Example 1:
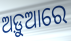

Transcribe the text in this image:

ଅଡ଼ୁଆରେ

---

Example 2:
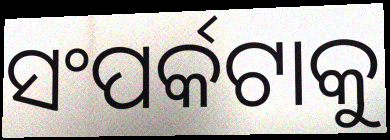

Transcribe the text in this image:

ସଂପର୍କଟାକୁ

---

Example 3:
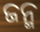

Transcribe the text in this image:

ଜନ୍ମ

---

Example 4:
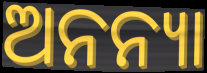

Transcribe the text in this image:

ଅନନ୍ୟା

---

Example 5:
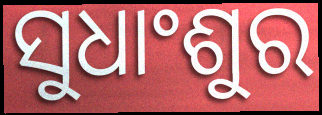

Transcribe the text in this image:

ସୁଧାଂଶୁର